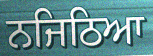
ਨਜਿਠਿਆ